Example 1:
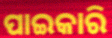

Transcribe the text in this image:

ପାଇକାରି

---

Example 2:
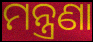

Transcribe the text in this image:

ମନ୍ତ୍ରଣା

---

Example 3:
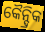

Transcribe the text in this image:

କୈନ୍ଦ୍ରିକ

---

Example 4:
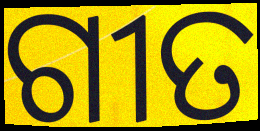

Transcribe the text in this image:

ଗୀତ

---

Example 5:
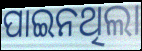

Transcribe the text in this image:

ପାଇନଥିଲା